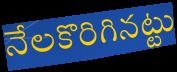
నేలకొరిగినట్టు